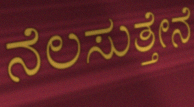
ನೆಲಸುತ್ತೇನೆ